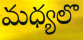
మధ్యలొ